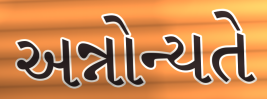
અન્નોન્યતે